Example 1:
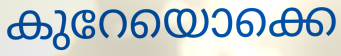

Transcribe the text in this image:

കുറേയൊക്കെ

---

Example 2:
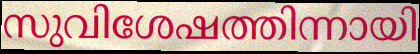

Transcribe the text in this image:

സുവിശേഷത്തിന്നായി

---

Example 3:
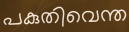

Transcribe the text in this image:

പകുതിവെന്ത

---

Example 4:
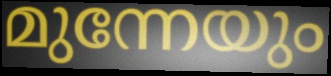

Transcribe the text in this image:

മുന്നേയും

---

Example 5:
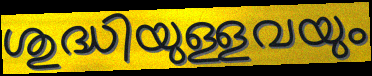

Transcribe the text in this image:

ശുദ്ധിയുള്ളവയും